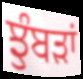
ਝੁੰਬੜਾਂ